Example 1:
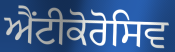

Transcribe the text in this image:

ਐਂਟੀਕੋਰੋਸਿਵ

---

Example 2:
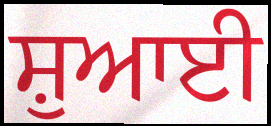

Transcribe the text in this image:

ਸ਼ੁਆਈ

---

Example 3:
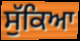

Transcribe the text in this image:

ਸੁੱਕਿਆ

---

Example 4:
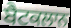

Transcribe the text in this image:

ਬੈਟਕਲਾਨ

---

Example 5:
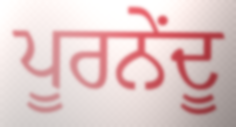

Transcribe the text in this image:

ਪੂਰਨੇਂਦੂ